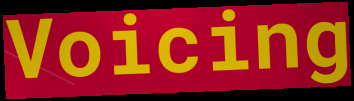
Voicing